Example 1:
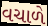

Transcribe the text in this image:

વચાળે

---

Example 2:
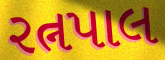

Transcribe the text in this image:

રત્નપાલ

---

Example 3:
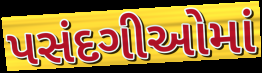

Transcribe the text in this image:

પસંદગીઓમાં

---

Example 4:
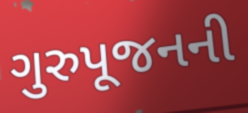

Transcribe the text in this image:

ગુરુપૂજનની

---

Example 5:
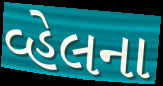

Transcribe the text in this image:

વ્હેલના